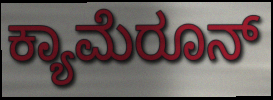
ಕ್ಯಾಮೆರೂನ್